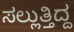
ಸಲ್ಲುತ್ತಿದ್ದ